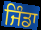
ਜਿੰਡਾ